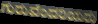
ಗುರುವೆಂದರಿಯರು